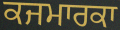
ਕਜਮਾਰਕਾ